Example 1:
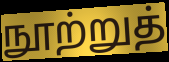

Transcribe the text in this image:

நூற்றுத்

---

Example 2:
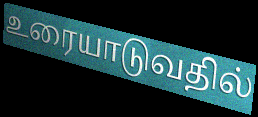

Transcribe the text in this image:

உரையாடுவதில்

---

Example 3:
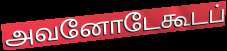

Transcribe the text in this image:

அவனோடேகூடப்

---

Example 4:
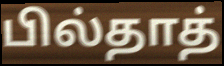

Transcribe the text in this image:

பில்தாத்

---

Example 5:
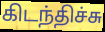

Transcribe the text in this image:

கிடந்திச்சு